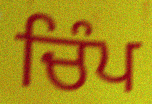
ਚਿੰਪ